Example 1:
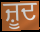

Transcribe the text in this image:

ਜ਼ੂਦ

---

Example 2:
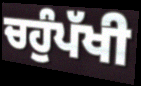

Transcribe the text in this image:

ਚਹੁੰਪੱਖੀ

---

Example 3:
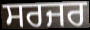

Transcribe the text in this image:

ਸਰਜਰ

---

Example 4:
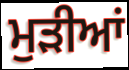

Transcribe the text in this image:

ਮੁੜੀਆਂ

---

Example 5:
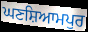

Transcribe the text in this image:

ਘਣਸ਼ਿਆਮਪੁਰ